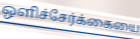
ஒளிச்சேர்க்கையை